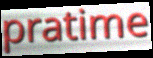
pratime